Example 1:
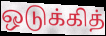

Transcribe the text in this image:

ஒடுக்கித்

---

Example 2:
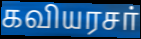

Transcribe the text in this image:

கவியரசர்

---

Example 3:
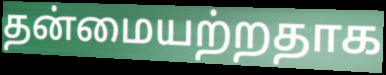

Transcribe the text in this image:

தன்மையற்றதாக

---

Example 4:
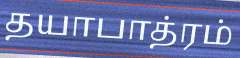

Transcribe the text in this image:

தயாபாத்ரம்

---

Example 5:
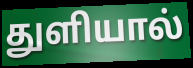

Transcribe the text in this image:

துளியால்